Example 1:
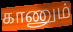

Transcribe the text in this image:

காணும்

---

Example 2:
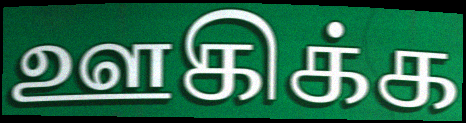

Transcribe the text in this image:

ஊகிக்க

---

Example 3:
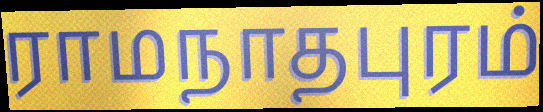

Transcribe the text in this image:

ராமநாதபுரம்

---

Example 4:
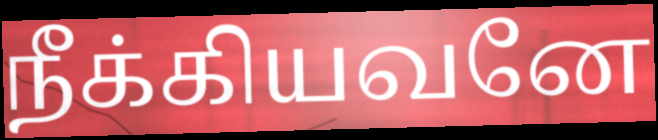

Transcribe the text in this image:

நீக்கியவனே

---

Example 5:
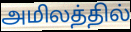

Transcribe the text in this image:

அமிலத்தில்